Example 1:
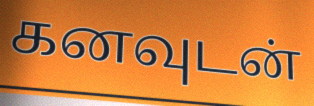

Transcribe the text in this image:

கனவுடன்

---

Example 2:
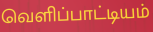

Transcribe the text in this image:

வெளிப்பாட்டியம்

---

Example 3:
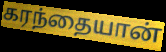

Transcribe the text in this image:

கரந்தையான்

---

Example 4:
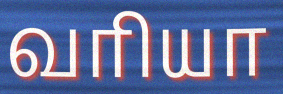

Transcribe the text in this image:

வரியா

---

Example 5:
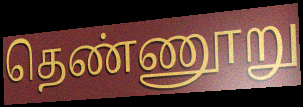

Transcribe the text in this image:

தெண்ணூறு